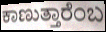
ಕಾಣುತ್ತಾರೆಂಬ